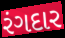
રંગદાર